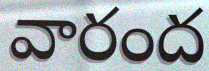
వారంద